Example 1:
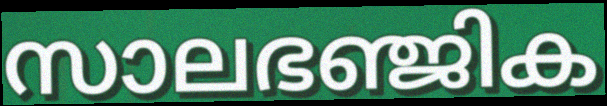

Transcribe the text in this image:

സാലഭഞ്ജിക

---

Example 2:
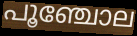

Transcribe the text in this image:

പൂഞ്ചോല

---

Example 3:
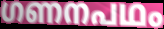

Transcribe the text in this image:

ഗണനപഥം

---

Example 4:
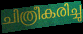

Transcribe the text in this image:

ചിത്രീകരിച്ചു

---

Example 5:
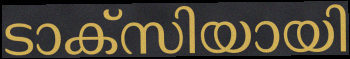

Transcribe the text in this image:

ടാക്സിയായി